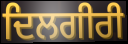
ਦਿਲਗੀਰੀ